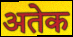
अतेक